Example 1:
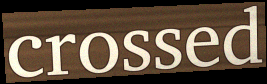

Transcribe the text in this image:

crossed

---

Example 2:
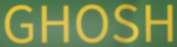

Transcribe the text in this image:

GHOSH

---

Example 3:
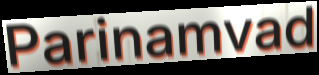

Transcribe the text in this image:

Parinamvad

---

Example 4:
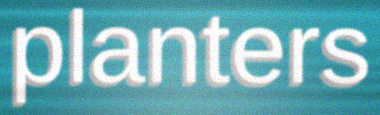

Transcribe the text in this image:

planters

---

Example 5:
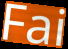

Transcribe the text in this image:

Fai